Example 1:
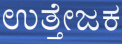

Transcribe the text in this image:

ಉತ್ತೇಜಕ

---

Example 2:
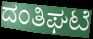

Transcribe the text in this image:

ದಂತಿಘಟೆ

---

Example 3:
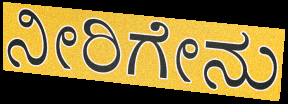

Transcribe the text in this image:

ನೀರಿಗೇನು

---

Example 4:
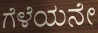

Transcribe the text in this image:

ಗೆಳೆಯನೇ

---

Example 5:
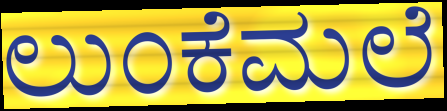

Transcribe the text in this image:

ಲುಂಕೆಮಲೆ